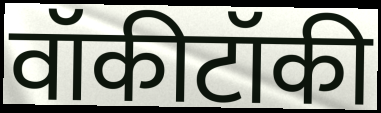
वॉकीटॉकी